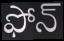
ఫోన్